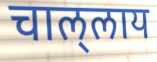
चाल्लाय